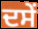
ਦਸੇਂ